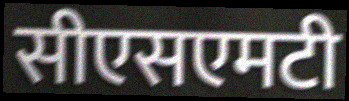
सीएसएमटी